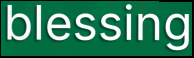
blessing